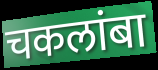
चकलांबा